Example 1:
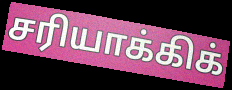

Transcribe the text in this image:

சரியாக்கிக்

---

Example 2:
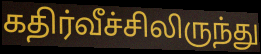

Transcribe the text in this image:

கதிர்வீச்சிலிருந்து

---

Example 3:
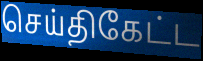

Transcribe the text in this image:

செய்திகேட்ட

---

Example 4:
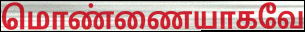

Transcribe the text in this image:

மொண்ணையாகவே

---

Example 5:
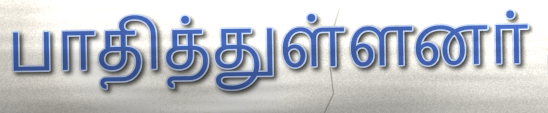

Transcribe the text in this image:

பாதித்துள்ளனர்